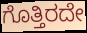
ಗೊತ್ತಿರದೇ